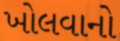
ખોલવાનો